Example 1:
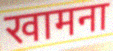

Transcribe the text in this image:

खामना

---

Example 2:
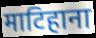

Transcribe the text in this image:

माटिहाना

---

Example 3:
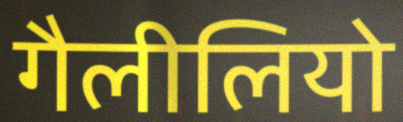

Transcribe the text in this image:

गैलीलियो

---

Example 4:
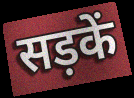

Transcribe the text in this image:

सड़कें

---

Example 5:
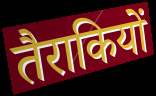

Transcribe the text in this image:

तैराकियों